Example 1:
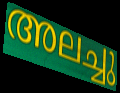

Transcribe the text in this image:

അലച്ചു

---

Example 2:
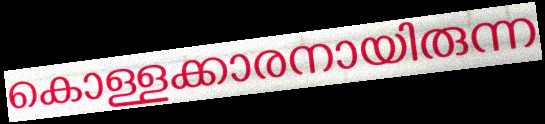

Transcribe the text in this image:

കൊള്ളക്കാരനായിരുന്ന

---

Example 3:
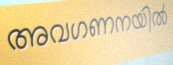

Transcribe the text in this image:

അവഗണനയിൽ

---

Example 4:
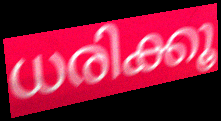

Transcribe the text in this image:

ധരിക്കൂ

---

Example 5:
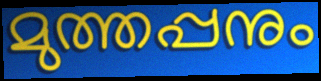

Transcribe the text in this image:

മുത്തപ്പനും